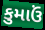
કુમાઉં